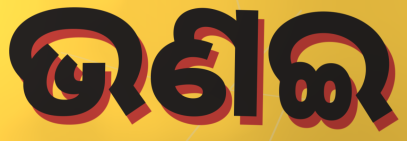
ଭଣଇ